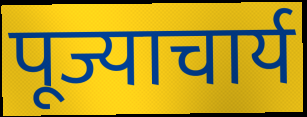
पूज्याचार्य